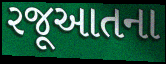
રજૂઆતના